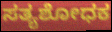
ಸತ್ಯಶೋಧಕ